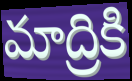
మాద్రికి